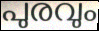
പുരവും